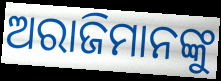
ଅରାଜିମାନଙ୍କୁ